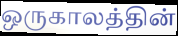
ஒருகாலத்தின்